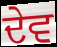
ਦੇਵ